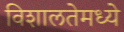
विशालतेमध्ये